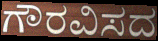
ಗೌರವಿಸದ